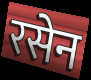
रसेन